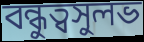
বন্ধুত্বসুলভ